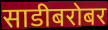
साडीबरोबर